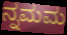
ನ್ನಮಮ